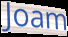
Joam